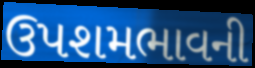
ઉપશમભાવની